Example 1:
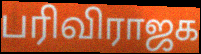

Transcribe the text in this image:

பரிவிராஜக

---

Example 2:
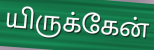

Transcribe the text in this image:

யிருக்கேன்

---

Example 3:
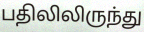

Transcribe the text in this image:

பதிலிலிருந்து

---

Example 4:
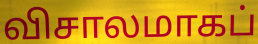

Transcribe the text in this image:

விசாலமாகப்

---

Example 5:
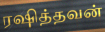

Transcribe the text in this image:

ரஷித்தவன்